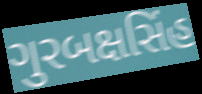
ગુરબક્ષસિંહ